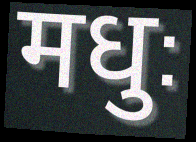
मधुः